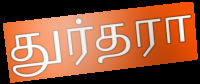
துர்தரா